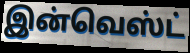
இன்வெஸ்ட்